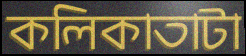
কলিকাতাটা